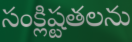
సంక్లిష్టతలను